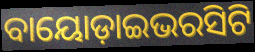
ବାୟୋଡ଼ାଇଭରସିଟି